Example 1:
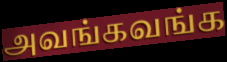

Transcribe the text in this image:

அவங்கவங்க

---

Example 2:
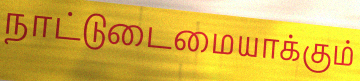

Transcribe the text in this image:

நாட்டுடைமையாக்கும்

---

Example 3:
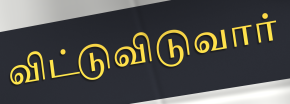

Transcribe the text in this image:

விட்டுவிடுவார்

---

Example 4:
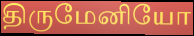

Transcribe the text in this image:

திருமேனியோ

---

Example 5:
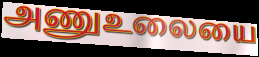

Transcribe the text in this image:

அணுஉலையை